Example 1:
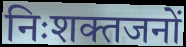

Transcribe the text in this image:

निःशक्तजनों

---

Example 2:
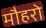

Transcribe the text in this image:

मौहरो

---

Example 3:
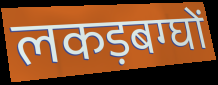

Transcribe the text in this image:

लकड़बग्घों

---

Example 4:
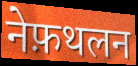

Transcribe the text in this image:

नेफ़थलन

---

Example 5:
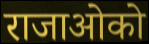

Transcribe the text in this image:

राजाओको